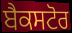
ਬੈਕਸਟੋਰ